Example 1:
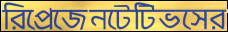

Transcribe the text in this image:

রিপ্রেজেনটেটিভসের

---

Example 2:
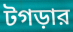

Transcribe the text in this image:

টগড়ার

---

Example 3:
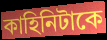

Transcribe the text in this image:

কাহিনিটাকে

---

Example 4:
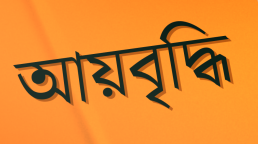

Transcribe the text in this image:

আয়বৃদ্ধি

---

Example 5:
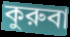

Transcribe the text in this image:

কুরুবা